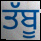
ਤੱਬੂ